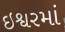
ઇશ્વરમાં